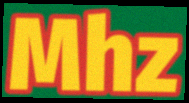
Mhz